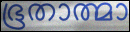
ഭൂതാത്മാ